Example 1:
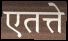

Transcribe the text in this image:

एतत्ते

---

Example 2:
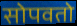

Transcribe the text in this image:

सोपवतो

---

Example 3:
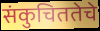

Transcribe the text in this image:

संकुचिततेचे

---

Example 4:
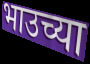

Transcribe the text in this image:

भाउच्या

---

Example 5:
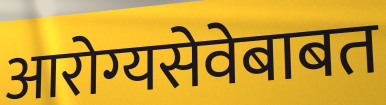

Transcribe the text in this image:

आरोग्यसेवेबाबत